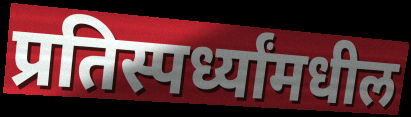
प्रतिस्पर्ध्यांमधील